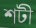
শটী